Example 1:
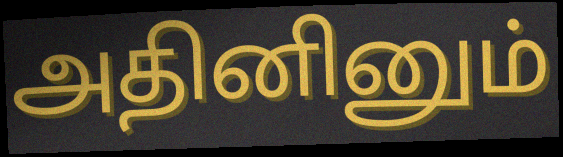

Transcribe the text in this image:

அதினினும்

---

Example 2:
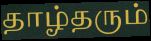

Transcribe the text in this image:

தாழ்தரும்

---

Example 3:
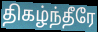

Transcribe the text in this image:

திகழ்ந்தீரே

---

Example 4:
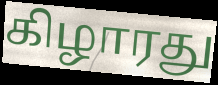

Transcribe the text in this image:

கிழாரது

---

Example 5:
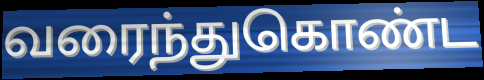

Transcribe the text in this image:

வரைந்துகொண்ட